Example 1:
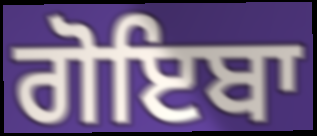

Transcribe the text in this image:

ਗੋਇਬਾ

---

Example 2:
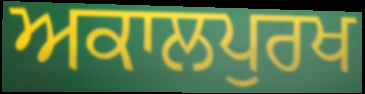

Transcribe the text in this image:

ਅਕਾਲਪੁਰਖ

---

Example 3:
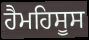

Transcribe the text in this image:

ਹੈਮਹਿਸੂਸ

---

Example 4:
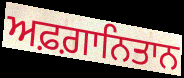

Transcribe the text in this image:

ਅਫ਼ਗ਼ਾਨਿਤਾਨ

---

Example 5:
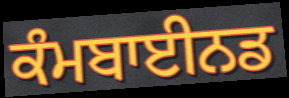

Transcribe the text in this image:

ਕੰਮਬਾਈਨਡ